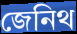
জেনিথ